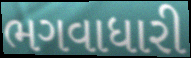
ભગવાધારી